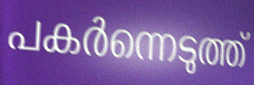
പകർന്നെടുത്ത്